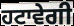
ਹਟਾਵੇਗੀ